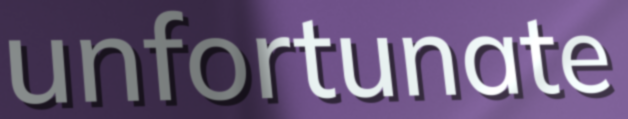
unfortunate